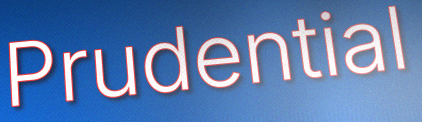
Prudential